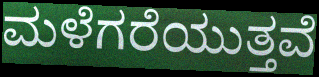
ಮಳೆಗರೆಯುತ್ತವೆ